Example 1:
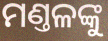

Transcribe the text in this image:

ମଣ୍ତଳଙ୍କୁ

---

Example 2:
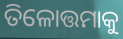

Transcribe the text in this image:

ତିଳୋତ୍ତମାକୁ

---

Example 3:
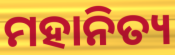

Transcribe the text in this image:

ମହାନିତ୍ୟ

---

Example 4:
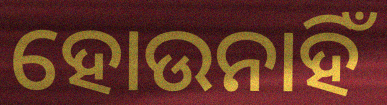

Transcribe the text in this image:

ହୋଉନାହିଁ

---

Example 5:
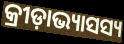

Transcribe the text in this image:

କ୍ରୀଡ଼ାଭ୍ୟାସସ୍ୟ